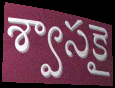
శ్వాసకై